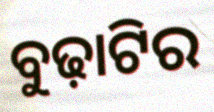
ବୁଢ଼ାଟିର